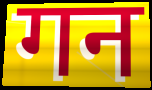
गन